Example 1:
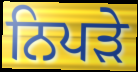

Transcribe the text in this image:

ਨਿਪੜੇ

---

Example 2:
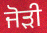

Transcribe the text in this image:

ਜੋਡ਼ੀ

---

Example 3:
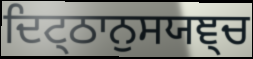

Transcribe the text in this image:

ਦਿਟ੍ਠਾਨੁਸਯਞ੍ਚ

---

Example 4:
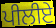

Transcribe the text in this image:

ਪੀਲੀਏ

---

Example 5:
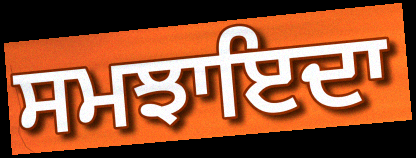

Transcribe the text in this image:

ਸਮਝਾਇਦਾ